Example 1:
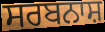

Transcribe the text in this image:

ਸਰਬਨਾਸ਼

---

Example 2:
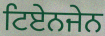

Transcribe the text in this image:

ਟਿਏਨਜੇਨ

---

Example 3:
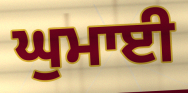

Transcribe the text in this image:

ਘੁਮਾਈ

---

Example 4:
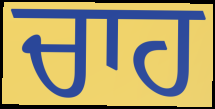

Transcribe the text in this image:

ਚਾਹ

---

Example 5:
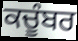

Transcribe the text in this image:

ਕਚੂੰਬਰ